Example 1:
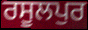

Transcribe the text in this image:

ਰਸੂਲਪੁਰ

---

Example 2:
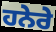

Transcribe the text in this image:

ਹਨੇਰੇ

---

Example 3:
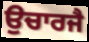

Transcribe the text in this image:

ਉਚਾਰਜੈ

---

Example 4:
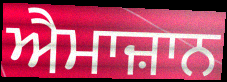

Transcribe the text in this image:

ਐਮਾਜ਼ਾਨ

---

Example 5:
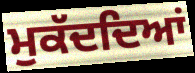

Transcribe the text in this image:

ਮੁਕੱਦਦਿਆਂ